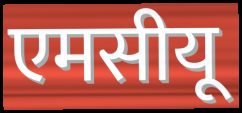
एमसीयू